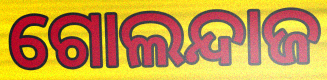
ଗୋଲନ୍ଦାଜ